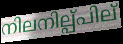
നിലനില്പ്പില്